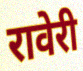
रावेरी